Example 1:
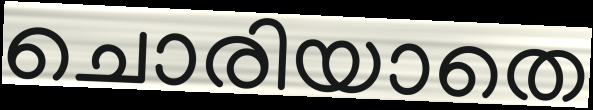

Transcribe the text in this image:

ചൊരിയാതെ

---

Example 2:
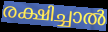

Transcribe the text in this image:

രക്ഷിച്ചാൽ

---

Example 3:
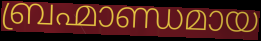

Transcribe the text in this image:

ബ്രഹ്മാണ്ഡമായ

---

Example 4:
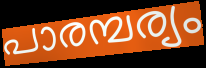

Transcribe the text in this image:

പാരമ്പര്യം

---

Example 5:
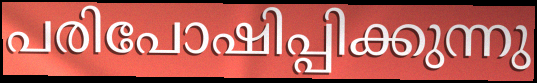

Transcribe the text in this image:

പരിപോഷിപ്പിക്കുന്നു